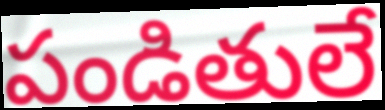
పండితులే